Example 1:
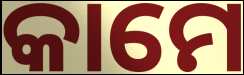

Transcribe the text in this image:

କାମେ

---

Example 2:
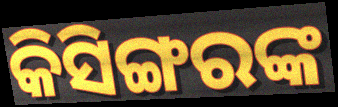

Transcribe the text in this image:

କିସିଙ୍ଗରଙ୍କ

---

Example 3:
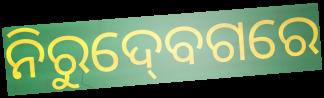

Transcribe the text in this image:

ନିରୁଦ୍‍ବେଗରେ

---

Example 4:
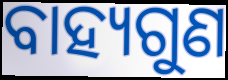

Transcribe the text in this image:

ବାହ୍ୟଗୁଣ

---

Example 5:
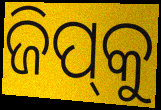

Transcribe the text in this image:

ଜିପ୍‌କୁ